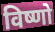
विष्णो